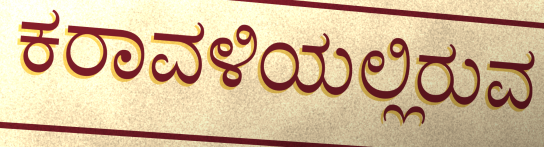
ಕರಾವಳಿಯಲ್ಲಿರುವ